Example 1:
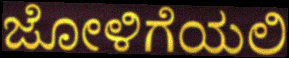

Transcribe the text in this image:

ಜೋಳಿಗೆಯಲಿ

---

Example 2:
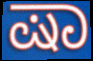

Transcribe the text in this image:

ಷಾ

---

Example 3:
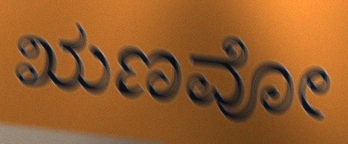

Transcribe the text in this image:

ಋಣವೋ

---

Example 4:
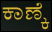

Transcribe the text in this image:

ಕಾಣ್ಕೆ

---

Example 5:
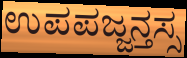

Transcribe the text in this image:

ಉಪಪಜ್ಜನ್ತಸ್ಸ